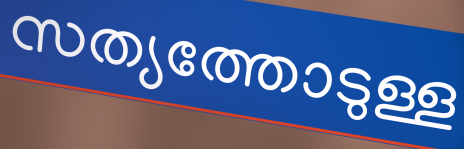
സത്യത്തോടുള്ള